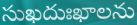
సుఖదుఃఖాలను